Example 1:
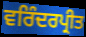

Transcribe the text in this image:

ਵਰਿੰਦਰਪ੍ਰੀਤ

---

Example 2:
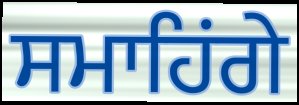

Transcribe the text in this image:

ਸਮਾਹਿਂਗੇ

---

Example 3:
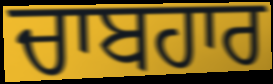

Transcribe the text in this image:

ਚਾਬਹਾਰ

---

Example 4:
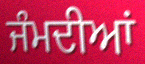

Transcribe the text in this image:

ਜੰਮਦੀਆਂ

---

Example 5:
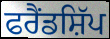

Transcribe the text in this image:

ਫਰੈਂਡਸ਼ਿੱਪ